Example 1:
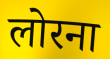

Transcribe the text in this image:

लोरना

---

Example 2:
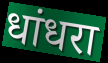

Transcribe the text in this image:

धांधरा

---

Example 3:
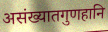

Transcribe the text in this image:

असंख्यातगुणहानि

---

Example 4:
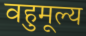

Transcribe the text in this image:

वहुमूल्य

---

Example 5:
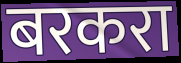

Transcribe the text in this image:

बरकरा